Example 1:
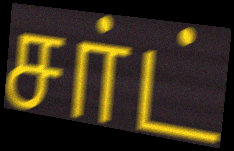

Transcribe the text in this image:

சர்ட்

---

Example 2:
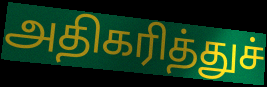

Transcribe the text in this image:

அதிகரித்துச்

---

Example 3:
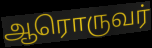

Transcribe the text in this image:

ஆரொருவர்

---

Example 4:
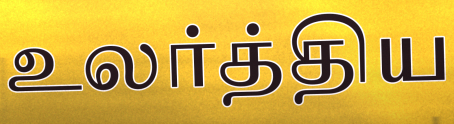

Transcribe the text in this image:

உலர்த்திய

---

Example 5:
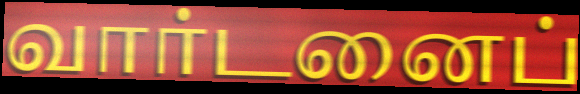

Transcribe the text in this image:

வார்டனைப்